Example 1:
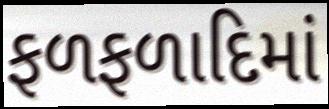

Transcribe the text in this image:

ફળફળાદિમાં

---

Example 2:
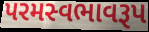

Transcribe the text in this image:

પરમસ્વભાવરૂપ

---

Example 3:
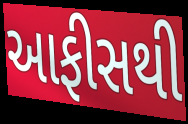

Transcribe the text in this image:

આફીસથી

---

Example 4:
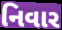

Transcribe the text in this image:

નિવાર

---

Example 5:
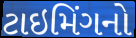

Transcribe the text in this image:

ટાઇમિંગનો